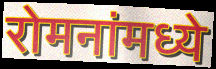
रोमनांमध्ये